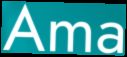
Ama